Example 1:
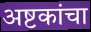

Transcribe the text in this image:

अष्टकांचा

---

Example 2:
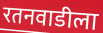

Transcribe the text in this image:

रतनवाडीला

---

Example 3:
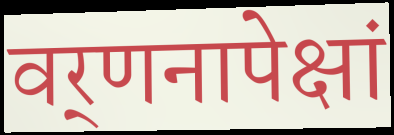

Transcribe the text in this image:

वर्णनापेक्षां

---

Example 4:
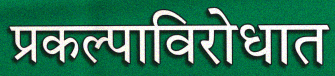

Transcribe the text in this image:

प्रकल्पाविरोधात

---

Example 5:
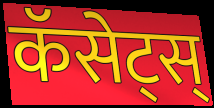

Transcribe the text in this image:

कॅसेट्स्